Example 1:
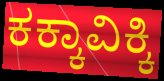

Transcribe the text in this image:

ಕಕ್ಕಾವಿಕ್ಕಿ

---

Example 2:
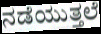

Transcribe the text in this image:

ನಡೆಯುತ್ತಲೆ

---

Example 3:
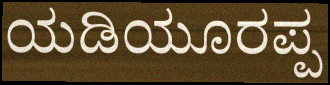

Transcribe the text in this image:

ಯಡಿಯೂರಪ್ಪ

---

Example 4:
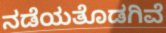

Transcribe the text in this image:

ನಡೆಯತೊಡಗಿವೆ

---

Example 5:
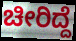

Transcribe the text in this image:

ಚೀರಿದ್ದೆ